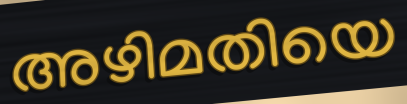
അഴിമതിയെ